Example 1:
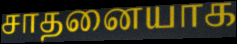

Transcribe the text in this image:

சாதனையாக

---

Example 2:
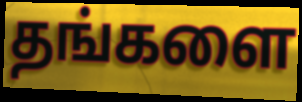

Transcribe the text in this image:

தங்களை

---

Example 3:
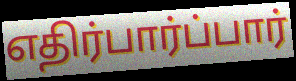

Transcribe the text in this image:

எதிர்பார்ப்பார்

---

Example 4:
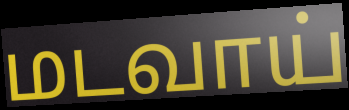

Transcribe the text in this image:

மடவாய்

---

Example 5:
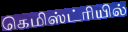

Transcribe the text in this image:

கெமிஸ்ட்ரியில்